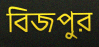
বিজপুর